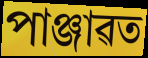
পাঞ্জাৱত